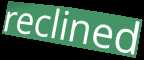
reclined